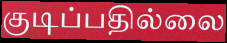
குடிப்பதில்லை